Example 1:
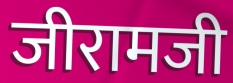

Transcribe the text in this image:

जीरामजी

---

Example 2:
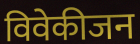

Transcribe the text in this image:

विवेकीजन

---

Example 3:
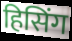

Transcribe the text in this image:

हिसिंग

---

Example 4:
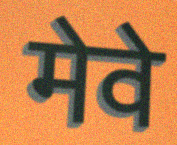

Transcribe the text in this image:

मेवे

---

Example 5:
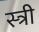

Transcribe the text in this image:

स्‍त्री